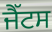
ਜੈੱਟਸ